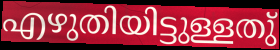
എഴുതിയിട്ടുള്ളതു്